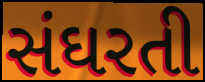
સંઘરતી